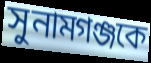
সুনামগঞ্জকে